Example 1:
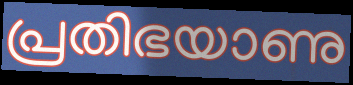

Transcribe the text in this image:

പ്രതിഭയാണു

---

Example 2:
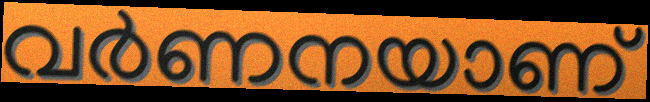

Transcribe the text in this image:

വർണനയാണ്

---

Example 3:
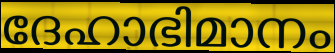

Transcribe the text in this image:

ദേഹാഭിമാനം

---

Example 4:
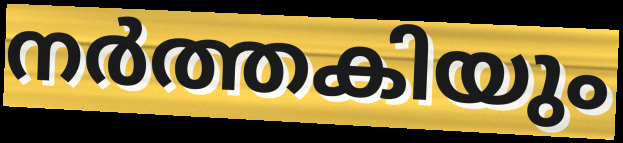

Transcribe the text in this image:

നർത്തകിയും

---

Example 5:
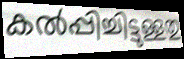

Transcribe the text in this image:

കൽപ്പിച്ചിട്ടുള്ളതു